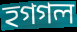
হগগল